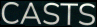
CASTS